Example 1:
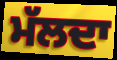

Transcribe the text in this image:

ਮੱਲਦਾ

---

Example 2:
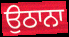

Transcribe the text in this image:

ਉਠਾਨਾ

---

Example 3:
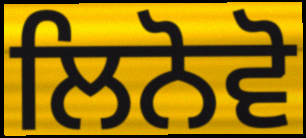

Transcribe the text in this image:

ਲਿਨੋਵੋ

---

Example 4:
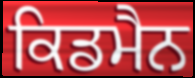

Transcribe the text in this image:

ਕਿਡਮੈਨ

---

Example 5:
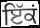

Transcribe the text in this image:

ਇੱਕਂ